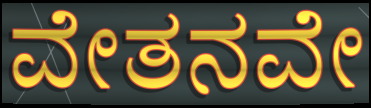
ವೇತನವೇ